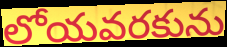
లోయవరకును